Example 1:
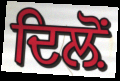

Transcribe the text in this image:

ਦਿਲ਼ੋਂ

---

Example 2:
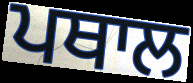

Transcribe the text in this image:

ਪਥਾਲ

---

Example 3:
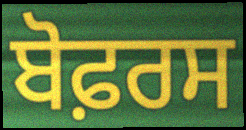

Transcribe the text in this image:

ਬੋਫ਼ਰਸ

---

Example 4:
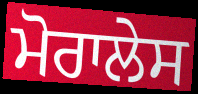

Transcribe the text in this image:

ਮੋਰਾਲੇਸ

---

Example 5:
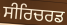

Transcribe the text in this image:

ਸੀਰਿਚਰਡ